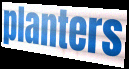
planters